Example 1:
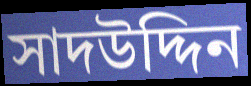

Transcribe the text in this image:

সাদউদ্দিন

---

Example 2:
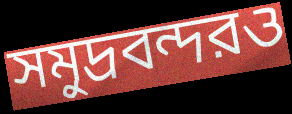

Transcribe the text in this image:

সমুদ্রবন্দরও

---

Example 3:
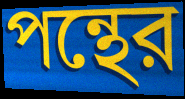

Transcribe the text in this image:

পন্থের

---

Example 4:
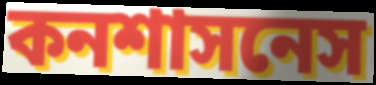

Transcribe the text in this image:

কনশাসনেস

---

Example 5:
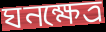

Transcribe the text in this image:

ঘনক্ষেত্র